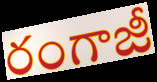
రంగాజీ